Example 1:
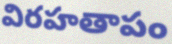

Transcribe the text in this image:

విరహతాపం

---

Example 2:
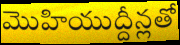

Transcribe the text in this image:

మొహియుద్దీన్లతో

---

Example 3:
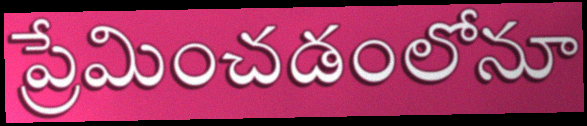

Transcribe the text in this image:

ప్రేమించడంలోనూ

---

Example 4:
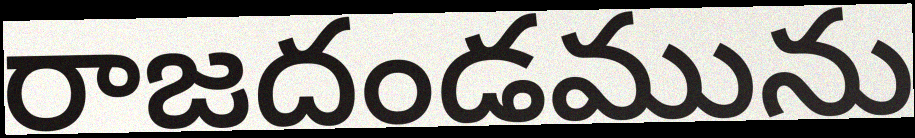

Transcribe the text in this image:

రాజదండమును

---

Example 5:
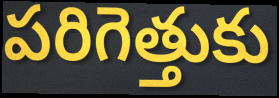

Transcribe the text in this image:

పరిగెత్తుకు